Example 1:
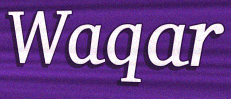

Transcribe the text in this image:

Waqar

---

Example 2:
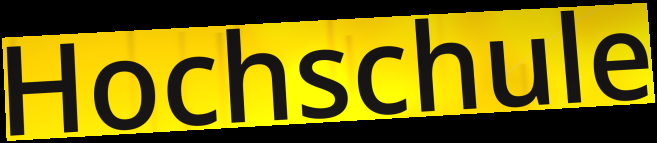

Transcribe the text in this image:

Hochschule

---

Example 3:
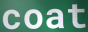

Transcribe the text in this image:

coat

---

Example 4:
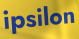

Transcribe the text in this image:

ipsilon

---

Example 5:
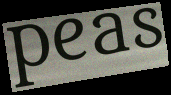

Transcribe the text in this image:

peas